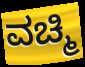
ವಚ್ಮಿ